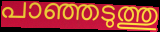
പാഞ്ഞടുത്തു